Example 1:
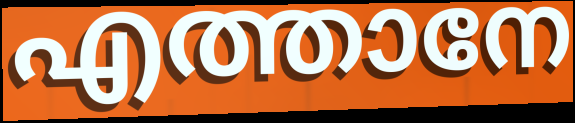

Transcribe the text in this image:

എത്താനേ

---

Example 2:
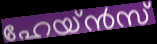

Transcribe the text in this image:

ഹേയ്ൻസ്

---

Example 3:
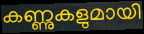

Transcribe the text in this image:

കണ്ണുകളുമായി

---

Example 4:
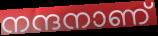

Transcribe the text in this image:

നന്ദനാണ്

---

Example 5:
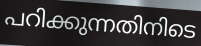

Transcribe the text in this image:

പറിക്കുന്നതിനിടെ